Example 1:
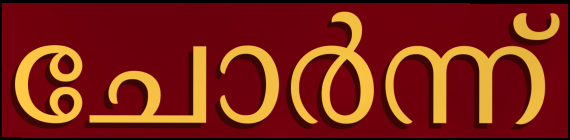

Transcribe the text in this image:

ചോർന്ന്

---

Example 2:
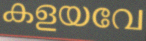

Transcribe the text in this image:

കളയവേ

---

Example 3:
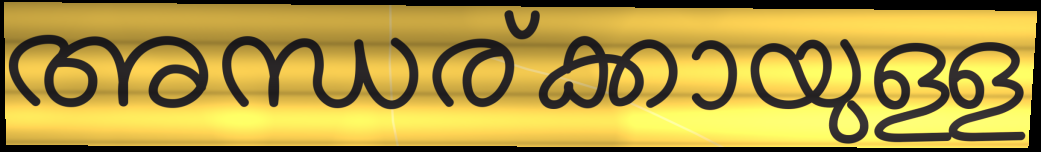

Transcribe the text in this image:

അന്ധര്ക്കായുള്ള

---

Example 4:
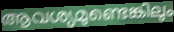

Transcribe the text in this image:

ആവശ്യമുണ്ടെങ്കിലും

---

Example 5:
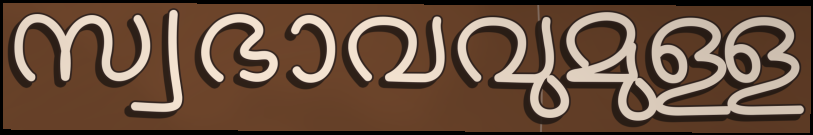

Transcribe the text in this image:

സ്വഭാവവുമുള്ള